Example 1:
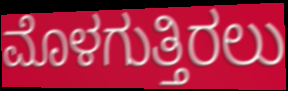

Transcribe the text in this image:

ಮೊಳಗುತ್ತಿರಲು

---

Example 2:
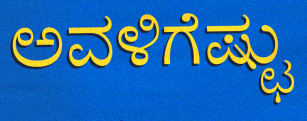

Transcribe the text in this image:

ಅವಳಿಗೆಷ್ಟು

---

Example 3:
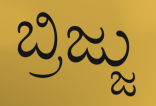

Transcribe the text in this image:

ಬ್ರಿಜ್ಜು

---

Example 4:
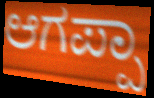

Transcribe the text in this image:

ಆಗಪ್ಪಾ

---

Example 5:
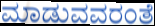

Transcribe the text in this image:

ಮಾಡುವವರಂತೆ